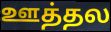
ஊத்தல